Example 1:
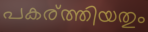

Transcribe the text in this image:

പകര്ത്തിയതും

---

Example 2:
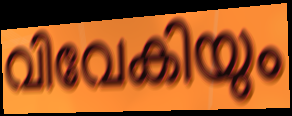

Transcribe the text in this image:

വിവേകിയും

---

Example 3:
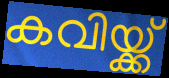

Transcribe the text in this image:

കവിയ്ക്ക്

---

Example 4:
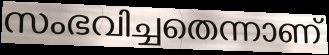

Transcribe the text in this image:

സംഭവിച്ചതെന്നാണ്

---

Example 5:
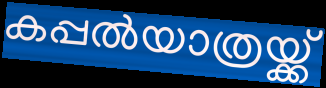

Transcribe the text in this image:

കപ്പൽയാത്രയ്ക്ക്